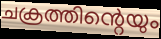
ചക്രത്തിന്റെയും